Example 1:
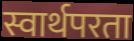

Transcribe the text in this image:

स्वार्थपरता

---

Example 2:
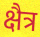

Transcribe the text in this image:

क्षैत्र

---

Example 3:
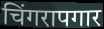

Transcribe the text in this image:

चिंगरापगार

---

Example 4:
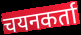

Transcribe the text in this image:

चयनकर्ता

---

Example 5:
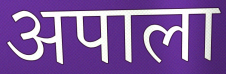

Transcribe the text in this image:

अपाला